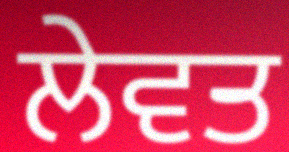
ਲੇਵਤ